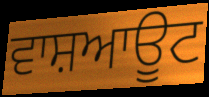
ਵਾਸ਼ਆਊਟ